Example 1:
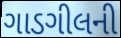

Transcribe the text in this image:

ગાડગીલની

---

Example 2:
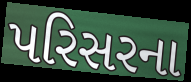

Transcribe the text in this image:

પરિસરના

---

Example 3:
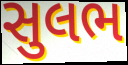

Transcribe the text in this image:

સુલભ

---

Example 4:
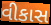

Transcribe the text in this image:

વીકાસ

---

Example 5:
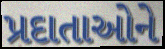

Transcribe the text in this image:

પ્રદાતાઓને